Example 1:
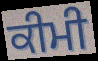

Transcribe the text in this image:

ਕੀਮੀ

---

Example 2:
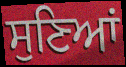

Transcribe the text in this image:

ਸੁਣਿਆਂ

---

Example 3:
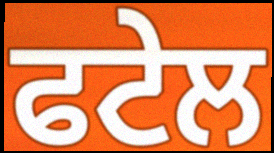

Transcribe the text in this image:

ਫਟੇਲ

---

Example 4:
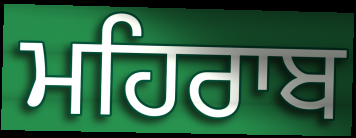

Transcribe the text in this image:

ਮਹਿਰਾਬ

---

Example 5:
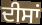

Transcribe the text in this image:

ਦੀਸਾਂ